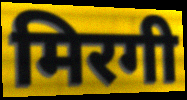
मिरगी